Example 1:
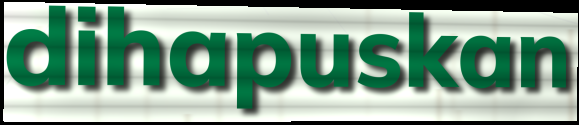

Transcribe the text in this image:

dihapuskan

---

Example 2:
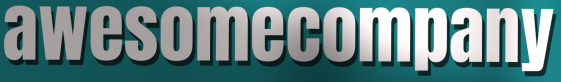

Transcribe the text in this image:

awesomecompany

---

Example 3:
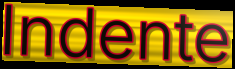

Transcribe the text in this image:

Indente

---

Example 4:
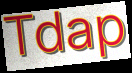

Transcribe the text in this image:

Tdap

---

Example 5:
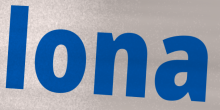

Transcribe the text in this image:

lona